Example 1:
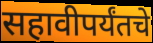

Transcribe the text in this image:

सहावीपर्यंतचे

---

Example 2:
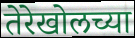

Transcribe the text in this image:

तेरेखोलच्या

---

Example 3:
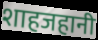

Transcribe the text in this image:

शाहजहानी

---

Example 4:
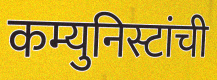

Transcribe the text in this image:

कम्युनिस्टांची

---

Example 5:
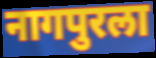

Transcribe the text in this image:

नागपुरला